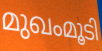
മുഖംമൂടി